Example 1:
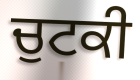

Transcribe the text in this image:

ਚੁਟਕੀ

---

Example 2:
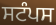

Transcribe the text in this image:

ਸਟੰਪਸ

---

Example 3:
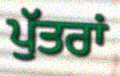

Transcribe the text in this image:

ਪੁੱਤਰਾਂ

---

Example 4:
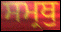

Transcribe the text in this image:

ਸਮ੍ਰਥੁ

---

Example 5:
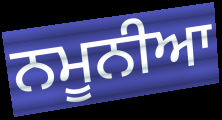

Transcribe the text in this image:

ਨਮੂਨੀਆ